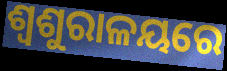
ଶ୍ଵଶୁରାଳୟରେ